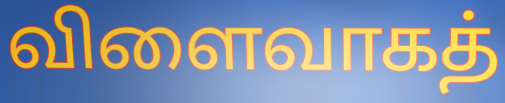
விளைவாகத்